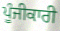
ਪੂੰਜੀਕਾਰੀ